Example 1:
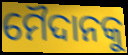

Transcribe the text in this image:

ମୈଦାନକୁ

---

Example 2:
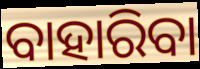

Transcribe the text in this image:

ବାହାରିବା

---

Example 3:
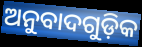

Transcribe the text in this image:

ଅନୁବାଦଗୁଡ଼ିକ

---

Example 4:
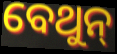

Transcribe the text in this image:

ବେଥୁନ୍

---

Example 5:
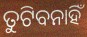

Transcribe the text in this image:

ତୁଟିବନାହିଁ